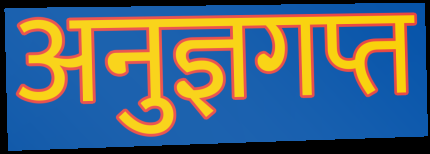
अनुज्ञगप्त